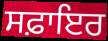
ਸਫ਼ਾਇਰ